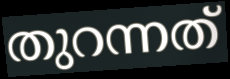
തുറന്നത്